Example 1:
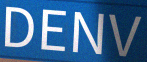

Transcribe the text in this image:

DENV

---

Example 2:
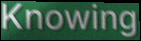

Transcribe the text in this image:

Knowing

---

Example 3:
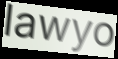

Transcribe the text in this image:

lawyo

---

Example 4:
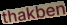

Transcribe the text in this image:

thakben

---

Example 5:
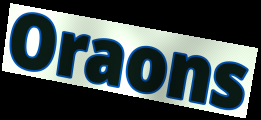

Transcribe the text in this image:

Oraons